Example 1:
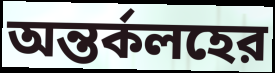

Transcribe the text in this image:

অন্তর্কলহের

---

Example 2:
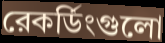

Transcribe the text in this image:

রেকর্ডিংগুলো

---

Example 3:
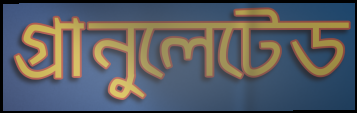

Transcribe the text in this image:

গ্রানুলেটেড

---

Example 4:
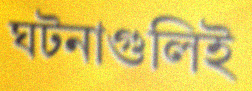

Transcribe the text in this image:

ঘটনাগুলিই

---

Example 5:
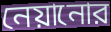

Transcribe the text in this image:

নেয়ানোর